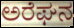
ಅರೆಘನ